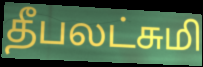
தீபலட்சுமி